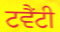
ਟਵੈਂਟੀ